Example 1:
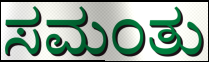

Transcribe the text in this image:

ಸಮಂತು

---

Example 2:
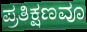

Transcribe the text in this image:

ಪ್ರತಿಕ್ಷಣವೂ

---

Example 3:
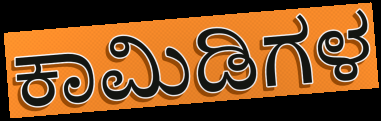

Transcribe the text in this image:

ಕಾಮಿಡಿಗಳ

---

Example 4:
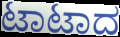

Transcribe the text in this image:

ಟಾಟಾದ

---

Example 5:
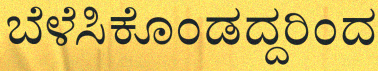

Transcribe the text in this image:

ಬೆಳೆಸಿಕೊಂಡದ್ದರಿಂದ